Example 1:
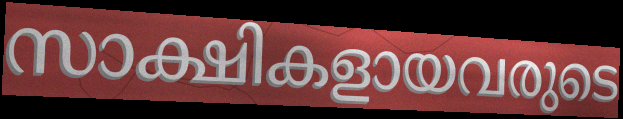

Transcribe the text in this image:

സാക്ഷികളായവരുടെ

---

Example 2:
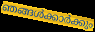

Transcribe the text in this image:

ഞങ്ങൾക്കാർക്കും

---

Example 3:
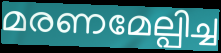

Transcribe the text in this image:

മരണമേല്പിച്ച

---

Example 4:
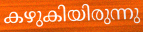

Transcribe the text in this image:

കഴുകിയിരുന്നു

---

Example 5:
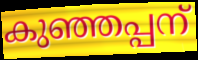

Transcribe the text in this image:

കുഞ്ഞപ്പന്